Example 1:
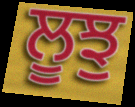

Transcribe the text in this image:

ਲੂਝੁ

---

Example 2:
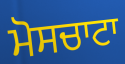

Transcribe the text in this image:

ਮੋਸਚਾਟਾ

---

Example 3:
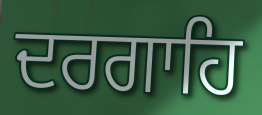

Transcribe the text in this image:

ਦਰਗਾਹਿ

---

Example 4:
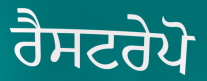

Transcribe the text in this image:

ਰੈਸਟਰੇਪੋ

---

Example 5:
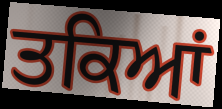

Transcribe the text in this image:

ਤਕਿਆਂ